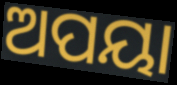
ଅପୟା